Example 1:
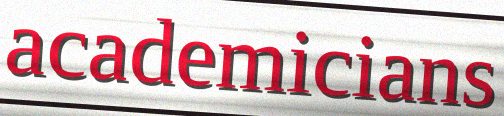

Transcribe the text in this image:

academicians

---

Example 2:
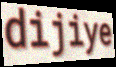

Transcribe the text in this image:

dijiye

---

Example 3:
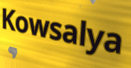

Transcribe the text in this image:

Kowsalya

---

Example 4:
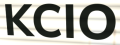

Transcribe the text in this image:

KCIO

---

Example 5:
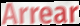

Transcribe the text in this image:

Arrear